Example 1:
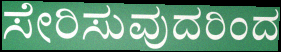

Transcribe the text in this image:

ಸೇರಿಸುವುದರಿಂದ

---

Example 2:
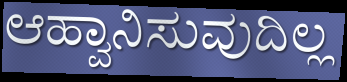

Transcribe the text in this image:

ಆಹ್ವಾನಿಸುವುದಿಲ್ಲ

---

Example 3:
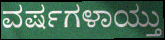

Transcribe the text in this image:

ವರ್ಷಗಳಾಯ್ತು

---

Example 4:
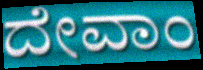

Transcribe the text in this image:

ದೇವಾಂ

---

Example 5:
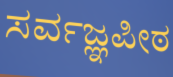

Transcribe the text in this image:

ಸರ್ವಜ್ಞಪೀಠ